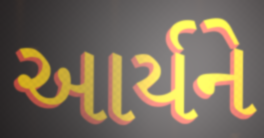
આર્યને